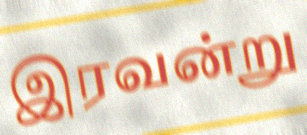
இரவன்று